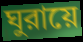
ঘুরায়ে